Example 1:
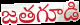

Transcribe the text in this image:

జతగూడి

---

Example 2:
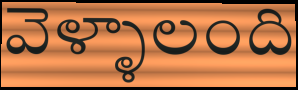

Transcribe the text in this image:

వెళ్ళాలంది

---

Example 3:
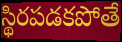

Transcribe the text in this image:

స్థిరపడకపోతే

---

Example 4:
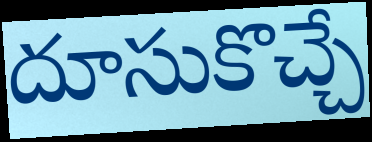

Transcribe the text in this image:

దూసుకొచ్చే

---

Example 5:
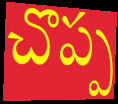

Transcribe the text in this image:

చొప్ప